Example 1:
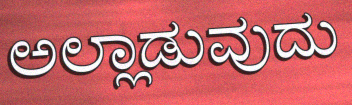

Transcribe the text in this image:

ಅಲ್ಲಾಡುವುದು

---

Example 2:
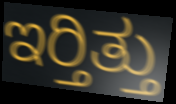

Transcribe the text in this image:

ಇರ್‍ತಿತ್ತು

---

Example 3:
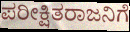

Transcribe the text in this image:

ಪರೀಕ್ಷಿತರಾಜನಿಗೆ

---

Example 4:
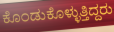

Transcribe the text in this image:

ಕೊಂಡುಕೊಳ್ಳುತ್ತಿದ್ದರು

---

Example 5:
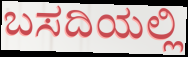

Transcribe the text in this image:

ಬಸದಿಯಲ್ಲಿ